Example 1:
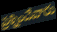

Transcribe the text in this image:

ప్రశ్నించేవారు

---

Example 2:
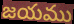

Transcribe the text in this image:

జయము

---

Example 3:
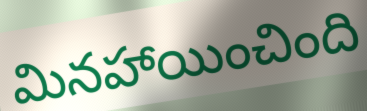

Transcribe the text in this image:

మినహాయించింది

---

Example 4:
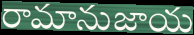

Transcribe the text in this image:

రామానుజాయ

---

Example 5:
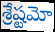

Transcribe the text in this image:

శ్రేష్టమో